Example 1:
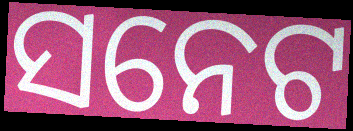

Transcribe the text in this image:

ସନେଟ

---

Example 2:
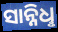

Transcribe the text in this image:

ସାନ୍ନିଧୢ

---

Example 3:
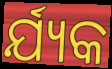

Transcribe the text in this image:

ର୍ଯ୍ୟକ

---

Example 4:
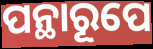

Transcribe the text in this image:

ପନ୍ଥାରୂପେ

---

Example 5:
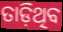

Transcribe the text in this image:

ତାଡ଼ିଥିବ